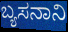
ಬ್ಯಸನಾನಿ